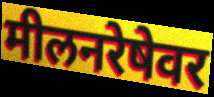
मीलनरेषेवर